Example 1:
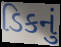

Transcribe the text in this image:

ડિકનું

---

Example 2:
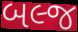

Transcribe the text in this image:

બલ્જ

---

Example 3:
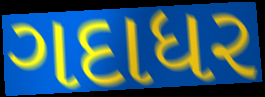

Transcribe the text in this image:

ગદાધર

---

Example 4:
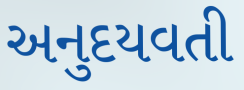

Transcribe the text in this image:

અનુદયવતી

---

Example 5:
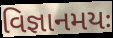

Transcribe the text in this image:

વિજ્ઞાનમયઃ